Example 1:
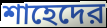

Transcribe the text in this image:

শাহেদের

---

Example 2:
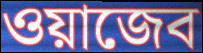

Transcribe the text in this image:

ওয়াজেব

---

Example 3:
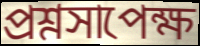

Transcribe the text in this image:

প্রশ্নসাপেক্ষ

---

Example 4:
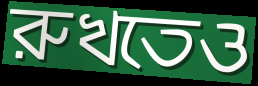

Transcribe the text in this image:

রুখতেও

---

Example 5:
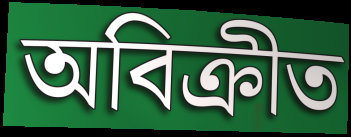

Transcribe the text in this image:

অবিক্রীত